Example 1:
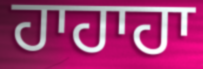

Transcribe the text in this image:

ਹਾਹਾਹਾ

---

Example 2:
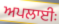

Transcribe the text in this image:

ਅਪਲਾਈਃ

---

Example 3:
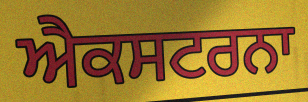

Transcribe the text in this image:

ਐਕਸਟਰਨਾ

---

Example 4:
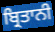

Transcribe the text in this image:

ਬ੍ਰਿਤਾਨੀ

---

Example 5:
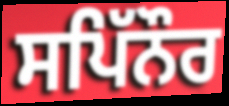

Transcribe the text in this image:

ਸਪਿੱਨੌਰ